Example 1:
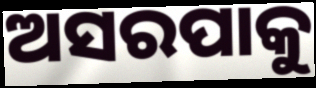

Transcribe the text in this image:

ଅସରପାକୁ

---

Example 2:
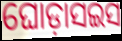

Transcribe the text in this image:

ଘୋଡ଼ାସଇସ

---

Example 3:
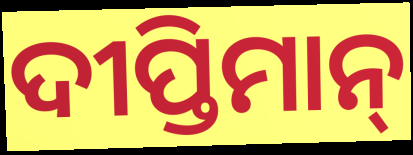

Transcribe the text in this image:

ଦୀପ୍ତିମାନ୍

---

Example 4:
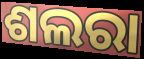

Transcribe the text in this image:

ଶଲରା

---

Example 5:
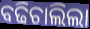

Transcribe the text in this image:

ବଢିଚାଲିଲା